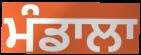
ਮੰਡਾਲਾ